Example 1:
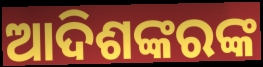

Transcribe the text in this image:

ଆଦିଶଙ୍କରଙ୍କ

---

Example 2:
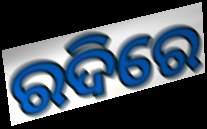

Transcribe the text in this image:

ରଦିରେ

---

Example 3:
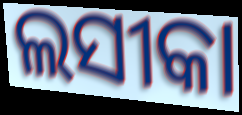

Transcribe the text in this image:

ଲସୀକା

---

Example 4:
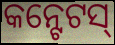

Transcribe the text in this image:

କନ୍ଟେଟସ୍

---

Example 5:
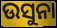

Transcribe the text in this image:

ଉସୁନା